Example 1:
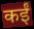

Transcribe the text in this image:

कईं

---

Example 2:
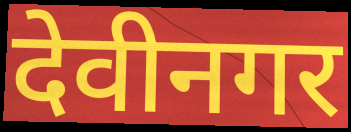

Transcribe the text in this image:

देवीनगर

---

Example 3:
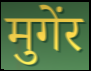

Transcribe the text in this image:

मुगेंर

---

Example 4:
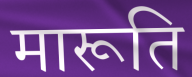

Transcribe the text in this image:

मारूति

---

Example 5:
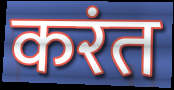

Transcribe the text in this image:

करंत